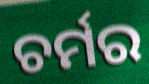
ଚର୍ମର